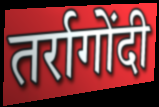
तर्रागोंदी